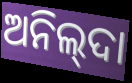
ଅନିଲ୍‌ଦା